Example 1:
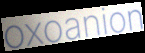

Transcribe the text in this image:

oxoanion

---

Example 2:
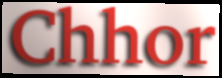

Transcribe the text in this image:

Chhor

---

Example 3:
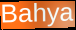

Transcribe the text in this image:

Bahya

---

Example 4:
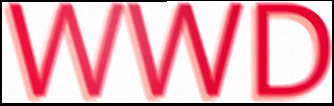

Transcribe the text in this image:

WWD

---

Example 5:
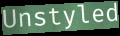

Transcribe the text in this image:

Unstyled